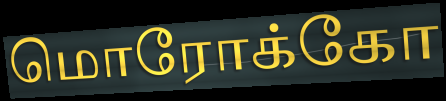
மொரோக்கோ